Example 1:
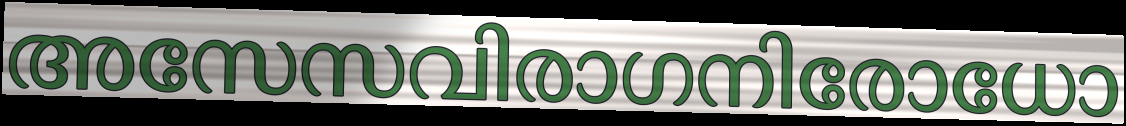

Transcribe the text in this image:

അസേസവിരാഗനിരോധോ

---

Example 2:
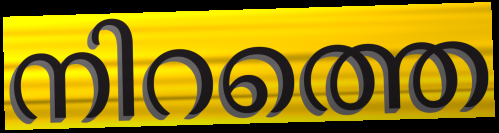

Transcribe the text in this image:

നിറത്തെ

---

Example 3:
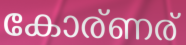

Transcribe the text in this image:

കോര്ണര്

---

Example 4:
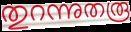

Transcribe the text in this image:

തുറന്നുതരൂ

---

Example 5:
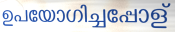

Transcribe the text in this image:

ഉപയോഗിച്ചപ്പോള്